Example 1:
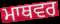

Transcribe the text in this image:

ਮਾਥਵਰ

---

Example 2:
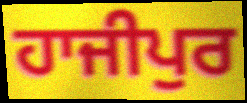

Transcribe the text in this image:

ਹਾਜੀਪੁਰ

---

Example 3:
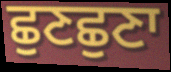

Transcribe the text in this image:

ਛੁਣਛੁਣਾ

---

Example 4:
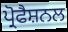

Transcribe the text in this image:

ਪ੍ਰੋਫੈਸ਼ਨਲ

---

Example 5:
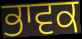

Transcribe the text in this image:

ਭਾਵਕ